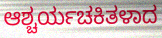
ಆಶ್ಚರ್ಯಚಕಿತಳಾದ